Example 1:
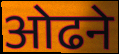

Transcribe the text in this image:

ओढने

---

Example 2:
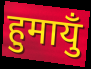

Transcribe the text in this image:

हुमायुँ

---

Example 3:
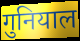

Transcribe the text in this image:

गुनियाल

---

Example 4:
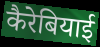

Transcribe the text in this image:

कैरेबियाई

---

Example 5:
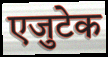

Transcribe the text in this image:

एजुटेक